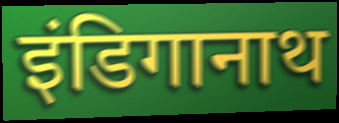
इंडिगानाथ